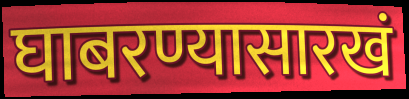
घाबरण्यासारखं